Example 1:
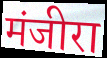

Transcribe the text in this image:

मंजीरा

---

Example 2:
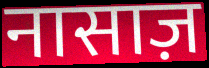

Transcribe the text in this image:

नासाज़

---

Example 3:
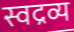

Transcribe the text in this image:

स्वद्रव्य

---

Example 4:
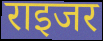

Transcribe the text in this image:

राइजर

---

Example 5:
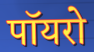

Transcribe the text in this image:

पॉयरो